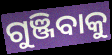
ଗୁଞ୍ଜିବାକୁ